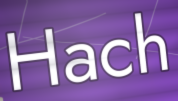
Hach